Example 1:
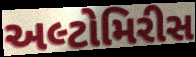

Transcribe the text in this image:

અલ્ટોમિરીસ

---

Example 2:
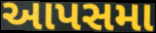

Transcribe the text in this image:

આપસમા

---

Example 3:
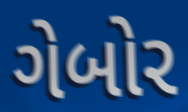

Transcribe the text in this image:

ગેબોર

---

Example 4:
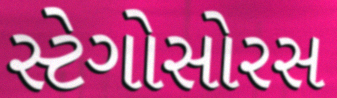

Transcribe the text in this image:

સ્ટેગોસોરસ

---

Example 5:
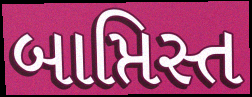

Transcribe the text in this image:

બાપ્તિસ્ત